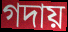
গদায়